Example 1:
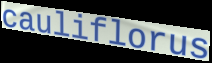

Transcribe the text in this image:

cauliflorus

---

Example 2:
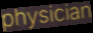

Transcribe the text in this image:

physician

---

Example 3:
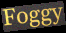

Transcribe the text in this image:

Foggy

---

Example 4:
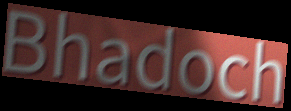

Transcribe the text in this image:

Bhadoch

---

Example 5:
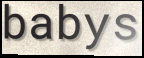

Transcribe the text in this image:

babys